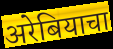
अरेबियाचा